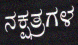
ನಕ್ಷತ್ರಗಳ